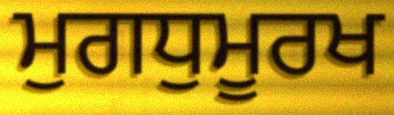
ਮੁਗਧੁਮੂਰਖ